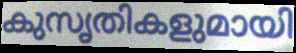
കുസൃതികളുമായി